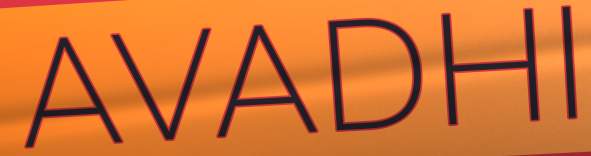
AVADHI